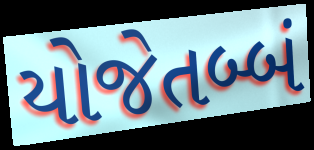
યોજેતબ્બં